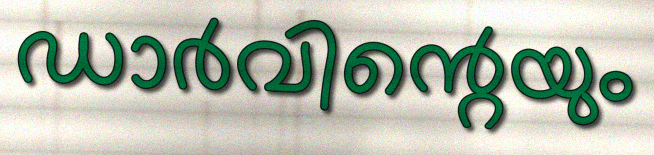
ഡാർവിന്റെയും